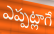
ఎప్పట్లాగే